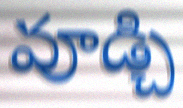
వూడ్చి